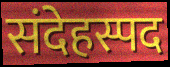
संदेहस्पद